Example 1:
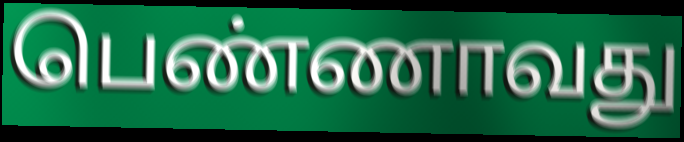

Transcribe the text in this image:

பெண்ணாவது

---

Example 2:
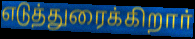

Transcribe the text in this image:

எடுத்துரைக்கிறார்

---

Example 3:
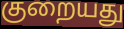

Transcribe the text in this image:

குறையது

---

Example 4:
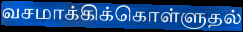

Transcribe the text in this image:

வசமாக்கிக்கொள்ளுதல்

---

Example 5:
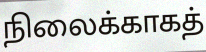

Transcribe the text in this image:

நிலைக்காகத்